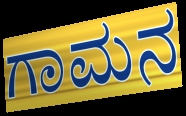
ಗಾಮನ